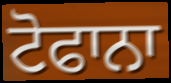
ਟੋਫਾਨਾ